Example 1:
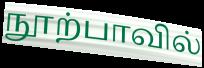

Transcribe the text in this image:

நூற்பாவில்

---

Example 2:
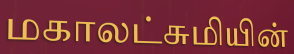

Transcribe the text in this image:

மகாலட்சுமியின்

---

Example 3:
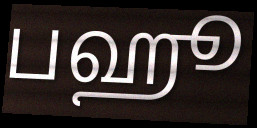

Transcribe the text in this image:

பஹூ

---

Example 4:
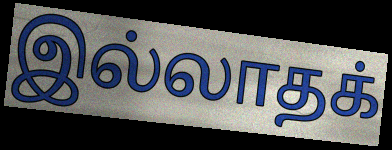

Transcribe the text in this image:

இல்லாதக்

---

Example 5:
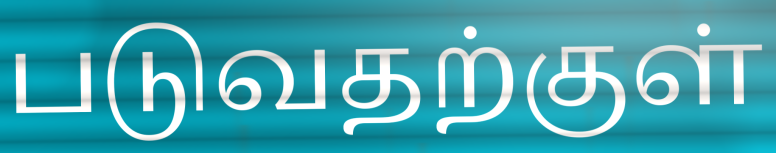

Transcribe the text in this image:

படுவதற்குள்